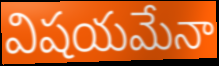
విషయమేనా